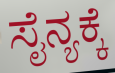
ಸೈನ್ಯಕ್ಕೆ